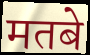
मतबे